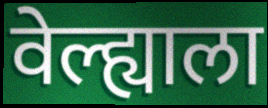
वेल्ह्याला